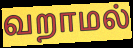
வறாமல்